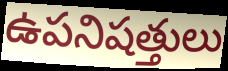
ఉపనిషత్తులు